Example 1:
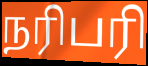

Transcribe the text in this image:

நரிபரி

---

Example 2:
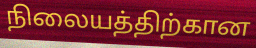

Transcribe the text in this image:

நிலையத்திற்கான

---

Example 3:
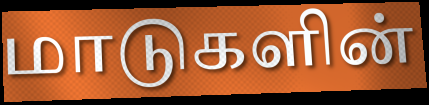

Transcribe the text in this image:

மாடுகளின்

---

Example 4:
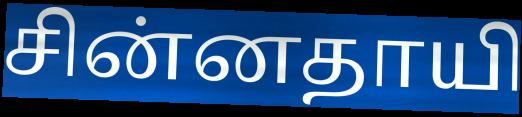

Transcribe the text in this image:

சின்னதாயி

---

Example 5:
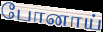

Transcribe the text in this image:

போனாய்